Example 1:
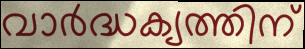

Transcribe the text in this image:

വാർദ്ധക്യത്തിന്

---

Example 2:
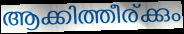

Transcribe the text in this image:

ആക്കിത്തീര്ക്കും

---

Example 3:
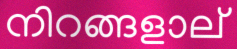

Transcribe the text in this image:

നിറങ്ങളാല്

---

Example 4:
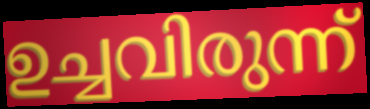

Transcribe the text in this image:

ഉച്ചവിരുന്ന്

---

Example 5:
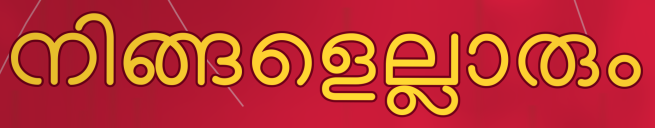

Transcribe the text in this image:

നിങ്ങളെല്ലാരും